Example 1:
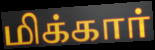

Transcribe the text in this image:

மிக்கார்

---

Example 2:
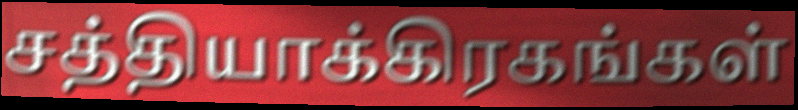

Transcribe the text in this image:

சத்தியாக்கிரகங்கள்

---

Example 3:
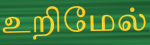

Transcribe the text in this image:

உறிமேல்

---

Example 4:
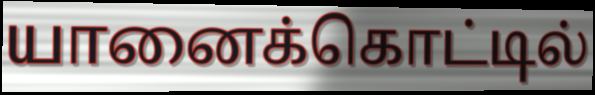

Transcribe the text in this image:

யானைக்கொட்டில்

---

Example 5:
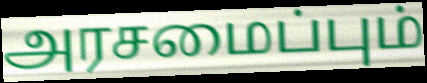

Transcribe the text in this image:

அரசமைப்பும்